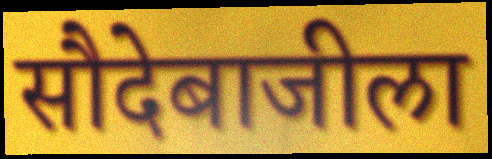
सौदेबाजीला